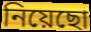
নিয়েছো